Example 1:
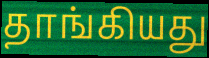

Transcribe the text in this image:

தாங்கியது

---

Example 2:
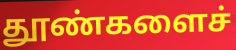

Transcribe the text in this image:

தூண்களைச்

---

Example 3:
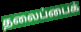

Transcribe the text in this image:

தலைப்பைக்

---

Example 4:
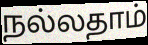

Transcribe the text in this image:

நல்லதாம்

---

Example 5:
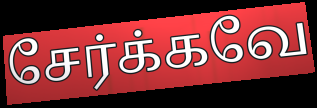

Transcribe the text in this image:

சேர்க்கவே